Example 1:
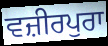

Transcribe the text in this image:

ਵਜ਼ੀਰਪੁਰਾ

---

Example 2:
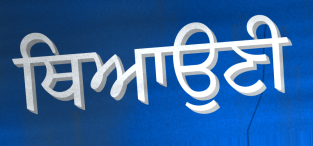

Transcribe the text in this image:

ਥਿਆਉਣੀ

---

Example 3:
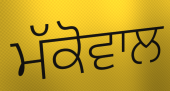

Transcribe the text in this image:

ਮੱਕੋਵਾਲ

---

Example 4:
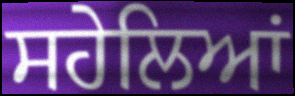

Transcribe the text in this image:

ਸਹੇਲਿਆਂ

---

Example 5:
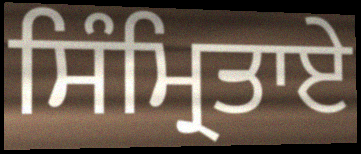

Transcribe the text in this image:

ਸਿੰਮ੍ਰਿਤਾਏ